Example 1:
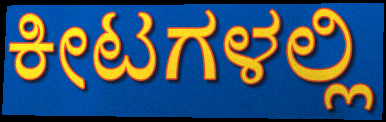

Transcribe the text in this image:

ಕೀಟಗಳಲ್ಲಿ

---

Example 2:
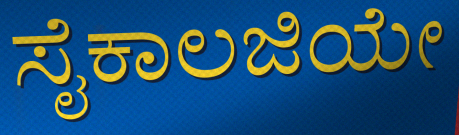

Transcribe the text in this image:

ಸೈಕಾಲಜಿಯೇ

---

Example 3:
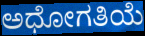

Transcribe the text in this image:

ಅಧೋಗತಿಯೆ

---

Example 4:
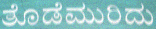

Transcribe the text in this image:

ತೊಡೆಮುರಿದು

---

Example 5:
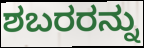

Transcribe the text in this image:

ಶಬರರನ್ನು